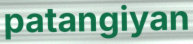
patangiyan